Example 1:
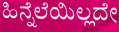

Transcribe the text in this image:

ಹಿನ್ನೆಲೆಯಿಲ್ಲದೇ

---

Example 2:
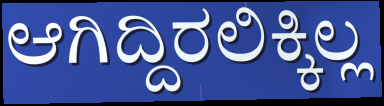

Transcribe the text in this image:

ಆಗಿದ್ದಿರಲಿಕ್ಕಿಲ್ಲ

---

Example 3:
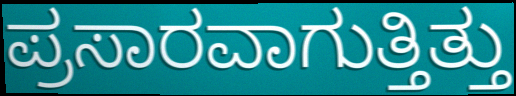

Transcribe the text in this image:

ಪ್ರಸಾರವಾಗುತ್ತಿತ್ತು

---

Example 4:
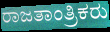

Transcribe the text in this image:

ರಾಜತಾಂತ್ರಿಕರು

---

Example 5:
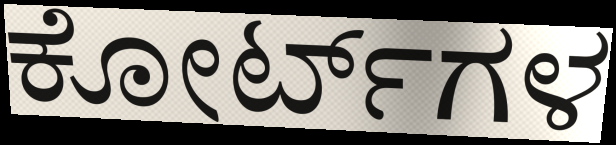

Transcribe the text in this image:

ಕೋರ್ಟ್‌ಗಳ